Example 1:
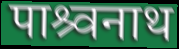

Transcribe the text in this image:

पाश्र्वनाथ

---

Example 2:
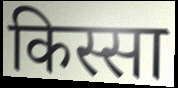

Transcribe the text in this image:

किस्सा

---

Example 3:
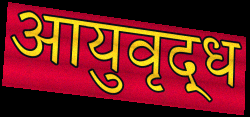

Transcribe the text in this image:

आयुवृद्ध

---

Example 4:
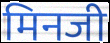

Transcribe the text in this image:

मिनजी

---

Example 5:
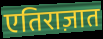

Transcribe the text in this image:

एतिराज़ात